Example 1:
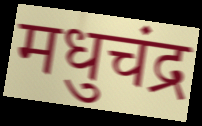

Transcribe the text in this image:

मधुचंद्र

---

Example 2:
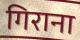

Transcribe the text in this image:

गिराना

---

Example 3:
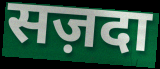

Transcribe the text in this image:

सज़दा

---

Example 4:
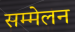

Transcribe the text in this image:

सम्‍मेलन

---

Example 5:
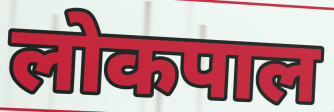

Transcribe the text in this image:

लोकपाल